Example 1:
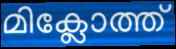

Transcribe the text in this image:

മിക്ലോത്ത്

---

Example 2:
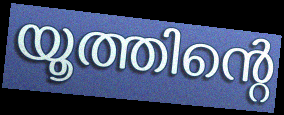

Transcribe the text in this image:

യൂത്തിന്റെ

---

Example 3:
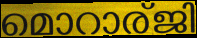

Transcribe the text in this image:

മൊറാര്ജി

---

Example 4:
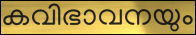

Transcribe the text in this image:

കവിഭാവനയും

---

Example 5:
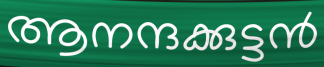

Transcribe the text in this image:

ആനന്ദക്കുട്ടൻ